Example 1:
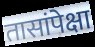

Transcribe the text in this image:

तासांपेक्षा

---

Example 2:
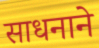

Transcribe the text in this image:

साधनाने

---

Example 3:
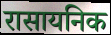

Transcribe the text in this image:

रासायनिक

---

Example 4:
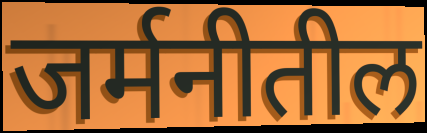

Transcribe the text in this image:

जर्मनीतील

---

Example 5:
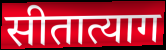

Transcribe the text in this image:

सीतात्याग